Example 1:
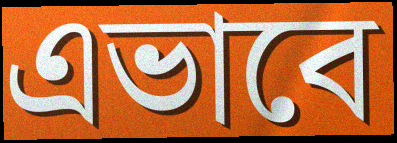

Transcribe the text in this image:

এভাবে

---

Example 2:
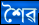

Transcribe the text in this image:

শৈৱ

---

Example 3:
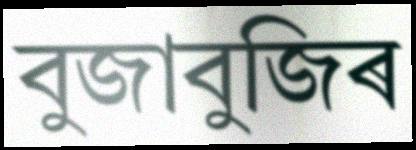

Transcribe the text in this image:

বুজাবুজিৰ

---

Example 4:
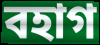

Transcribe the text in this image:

বহাগ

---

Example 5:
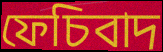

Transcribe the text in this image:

ফেচিবাদ